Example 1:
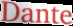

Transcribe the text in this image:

Dante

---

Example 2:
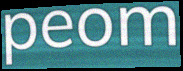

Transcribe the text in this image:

peom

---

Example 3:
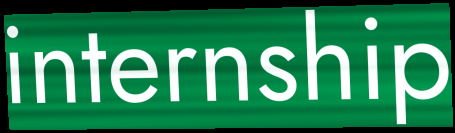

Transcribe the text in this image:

internship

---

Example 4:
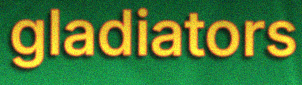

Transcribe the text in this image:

gladiators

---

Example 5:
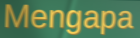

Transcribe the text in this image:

Mengapa